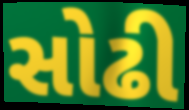
સોઢી